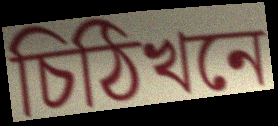
চিঠিখনে